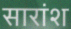
सारांश